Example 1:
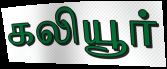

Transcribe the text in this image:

கலியூர்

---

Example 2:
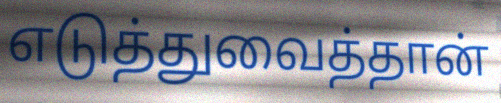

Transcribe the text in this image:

எடுத்துவைத்தான்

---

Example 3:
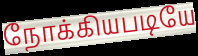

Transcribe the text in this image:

நோக்கியபடியே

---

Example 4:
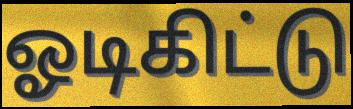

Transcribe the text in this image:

ஓடிகிட்டு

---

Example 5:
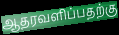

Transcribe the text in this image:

ஆதரவளிப்பதற்கு